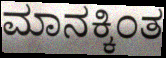
ಮಾನಕ್ಕಿಂತ